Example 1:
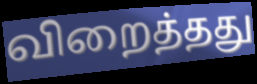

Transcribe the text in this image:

விறைத்தது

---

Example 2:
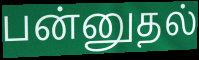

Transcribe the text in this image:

பன்னுதல்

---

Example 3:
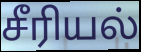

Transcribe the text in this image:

சீரியல்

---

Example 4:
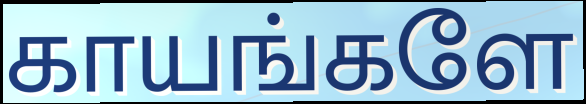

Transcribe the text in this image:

காயங்களே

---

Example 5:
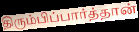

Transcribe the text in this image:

திரும்பிப்பார்த்தான்